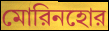
মোরিনহোর